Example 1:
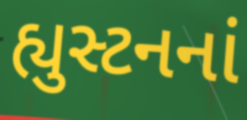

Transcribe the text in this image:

હ્યુસ્ટનનાં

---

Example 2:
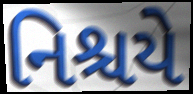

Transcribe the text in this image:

નિશ્ચયે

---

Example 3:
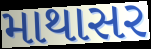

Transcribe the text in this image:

માથાસર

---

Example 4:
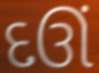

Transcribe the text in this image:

દઊં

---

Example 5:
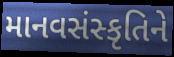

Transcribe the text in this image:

માનવસંસ્કૃતિને